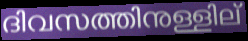
ദിവസത്തിനുള്ളില്